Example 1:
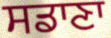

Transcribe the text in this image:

ਸਡਾਣਾ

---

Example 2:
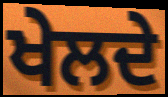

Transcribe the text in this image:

ਖੇਲਦੇ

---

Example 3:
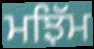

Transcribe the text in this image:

ਮਝਿੱਮ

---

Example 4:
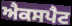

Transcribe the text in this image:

ਐਕਸਪੈਟ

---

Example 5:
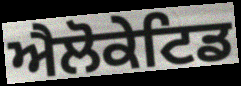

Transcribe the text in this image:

ਐਲੋਕੇਟਿਡ